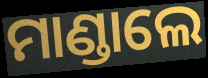
ମାଣ୍ଡାଲେ